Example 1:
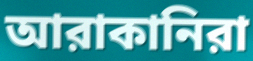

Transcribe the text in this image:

আরাকানিরা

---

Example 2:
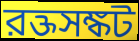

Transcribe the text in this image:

রক্তসঙ্কট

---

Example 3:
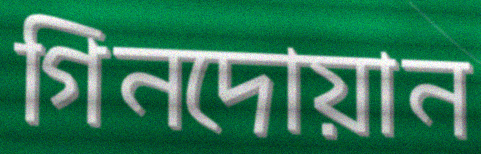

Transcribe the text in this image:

গিনদোয়ান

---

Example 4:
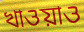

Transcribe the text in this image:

খাওয়াও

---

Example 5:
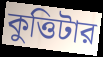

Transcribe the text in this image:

কুত্তিটার